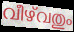
വീഴ്‌വതും